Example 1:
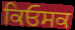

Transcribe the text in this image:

ਕਿਓਸਕ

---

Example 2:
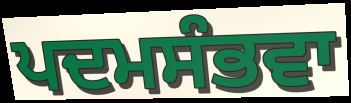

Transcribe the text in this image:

ਪਦਮਸੰਭਵਾ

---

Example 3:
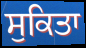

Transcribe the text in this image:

ਸੁਕਿਤਾ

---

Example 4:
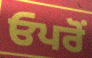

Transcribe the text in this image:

ਓਪਰੋਂ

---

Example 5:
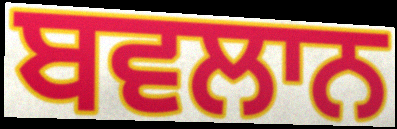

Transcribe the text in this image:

ਬਵਲਾਨ